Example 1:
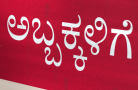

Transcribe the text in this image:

ಅಬ್ಬಕ್ಕಳಿಗೆ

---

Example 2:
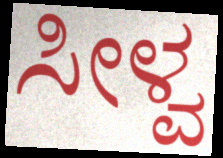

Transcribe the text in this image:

ಸೀಳ್ವ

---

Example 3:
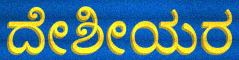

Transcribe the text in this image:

ದೇಶೀಯರ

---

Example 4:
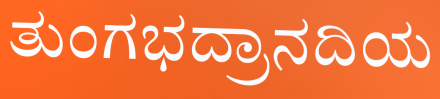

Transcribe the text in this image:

ತುಂಗಭದ್ರಾನದಿಯ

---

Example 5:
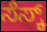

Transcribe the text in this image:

ಸೆಸ್ಕ್